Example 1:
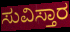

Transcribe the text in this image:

ಸುವಿಸ್ತಾರ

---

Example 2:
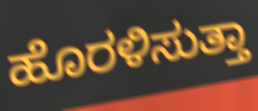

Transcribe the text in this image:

ಹೊರಳಿಸುತ್ತಾ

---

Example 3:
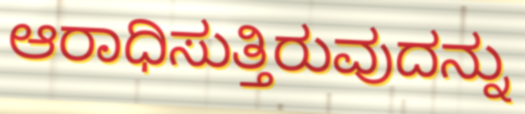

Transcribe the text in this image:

ಆರಾಧಿಸುತ್ತಿರುವುದನ್ನು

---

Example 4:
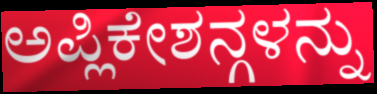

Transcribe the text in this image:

ಅಪ್ಲಿಕೇಶನ್ಗಳನ್ನು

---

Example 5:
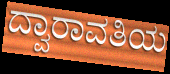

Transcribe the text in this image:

ದ್ವಾರಾವತಿಯ